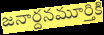
జనార్దనమూర్తికి